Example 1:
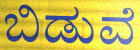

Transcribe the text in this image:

ಬಿಡುವೆ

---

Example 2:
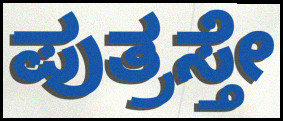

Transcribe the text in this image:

ಪುತ್ರಸ್ತೇ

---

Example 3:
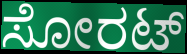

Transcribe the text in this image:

ಸೋರಟ್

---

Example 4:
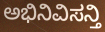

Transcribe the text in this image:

ಅಭಿನಿವಿಸನ್ತಿ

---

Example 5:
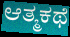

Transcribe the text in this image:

ಆತ್ಮಕಥೆ